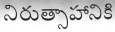
నిరుత్సాహానికి